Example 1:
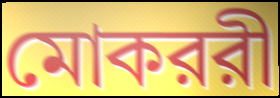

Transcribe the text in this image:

মোকররী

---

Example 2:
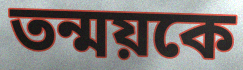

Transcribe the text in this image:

তন্ময়কে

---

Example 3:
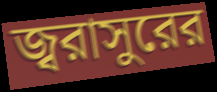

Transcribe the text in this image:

জ্বরাসুরের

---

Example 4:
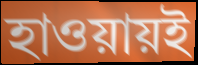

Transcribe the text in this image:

হাওয়ায়ই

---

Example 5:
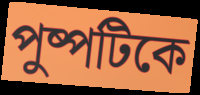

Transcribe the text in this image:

পুষ্পটিকে